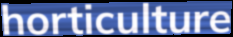
horticulture